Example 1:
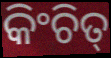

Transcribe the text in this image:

କିଂଚିତ୍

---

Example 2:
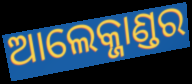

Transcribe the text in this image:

ଆଲେକ୍ଜାଣ୍ଡର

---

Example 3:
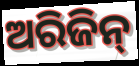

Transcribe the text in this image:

ଅରିଜିନ୍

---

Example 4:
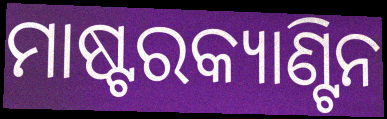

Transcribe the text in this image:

ମାଷ୍ଟରକ୍ୟାଣ୍ଟିନ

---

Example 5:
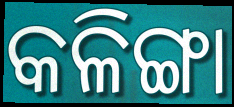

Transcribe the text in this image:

କଳିଙ୍ଗା